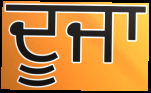
ਦੂਜਾ